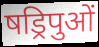
षड्रिपुओं